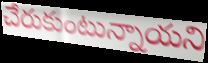
చేరుకుంటున్నాయని